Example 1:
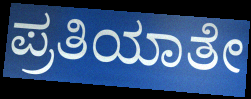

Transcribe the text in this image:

ಪ್ರತಿಯಾತೇ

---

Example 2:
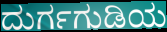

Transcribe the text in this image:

ದುರ್ಗಗುಡಿಯ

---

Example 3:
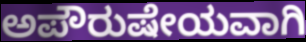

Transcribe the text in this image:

ಅಪೌರುಷೇಯವಾಗಿ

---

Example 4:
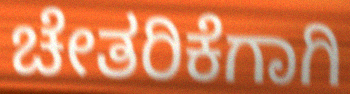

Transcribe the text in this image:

ಚೇತರಿಕೆಗಾಗಿ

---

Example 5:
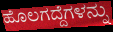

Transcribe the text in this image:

ಹೊಲಗದ್ದೆಗಳನ್ನು